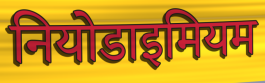
नियोडाइमियम